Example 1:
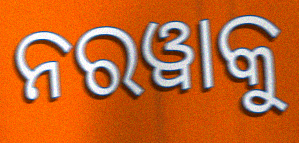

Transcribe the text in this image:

ନରୱାକୁ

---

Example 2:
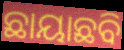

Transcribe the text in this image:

ଛାୟାଛବି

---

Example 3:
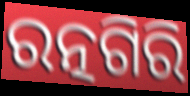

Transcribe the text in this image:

ରତ୍ନଗିରି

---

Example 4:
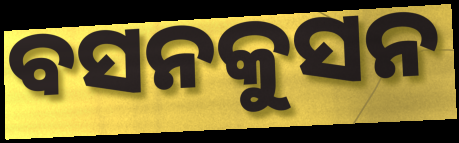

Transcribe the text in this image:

ବସନକୁସନ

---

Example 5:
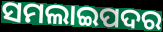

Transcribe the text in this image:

ସମଲାଇପଦର